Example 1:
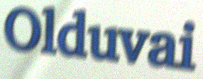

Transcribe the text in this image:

Olduvai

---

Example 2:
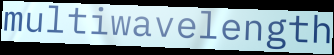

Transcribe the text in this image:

multiwavelength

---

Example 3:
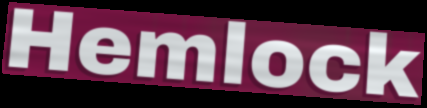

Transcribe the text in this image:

Hemlock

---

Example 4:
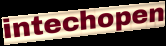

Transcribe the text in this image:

intechopen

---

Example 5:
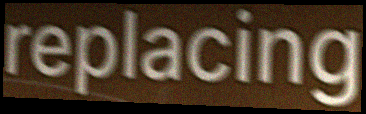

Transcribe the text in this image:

replacing